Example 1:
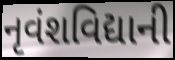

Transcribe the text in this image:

નૃવંશવિદ્યાની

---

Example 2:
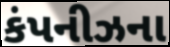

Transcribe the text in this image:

કંપનીઝના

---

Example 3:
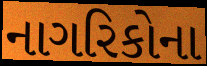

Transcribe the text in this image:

નાગરિકોના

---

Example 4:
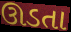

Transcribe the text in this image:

ઊડતા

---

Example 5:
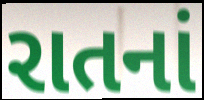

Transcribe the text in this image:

રાતનાં